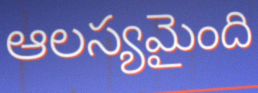
ఆలస్యమైంది